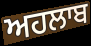
ਅਹਲਾਬ